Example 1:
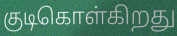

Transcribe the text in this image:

குடிகொள்கிறது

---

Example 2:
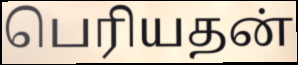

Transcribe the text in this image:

பெரியதன்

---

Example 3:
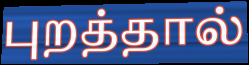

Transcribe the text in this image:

புறத்தால்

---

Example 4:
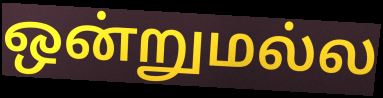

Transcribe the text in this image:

ஒன்றுமல்ல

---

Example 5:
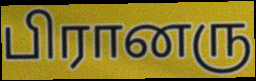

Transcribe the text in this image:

பிரானரு